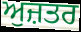
ਅੁਜ਼ਤਰ